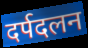
दर्पदलन